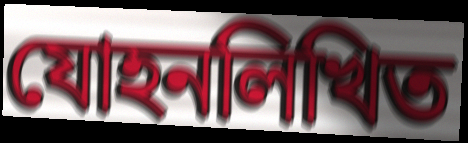
যোহনলিখিত